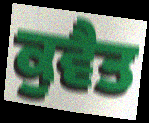
ਕੁਵੈਤ